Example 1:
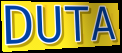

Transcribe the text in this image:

DUTA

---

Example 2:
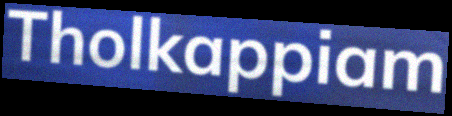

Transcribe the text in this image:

Tholkappiam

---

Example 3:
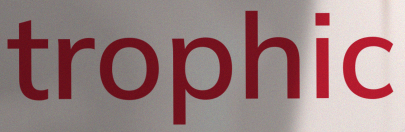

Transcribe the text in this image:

trophic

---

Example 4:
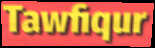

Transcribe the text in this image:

Tawfiqur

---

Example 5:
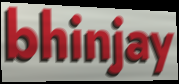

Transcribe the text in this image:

bhinjay